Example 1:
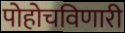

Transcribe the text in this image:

पोहोचविणारी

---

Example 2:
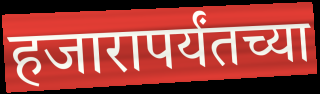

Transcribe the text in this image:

हजारापर्यंतच्या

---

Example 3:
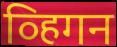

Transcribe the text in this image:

व्हिगन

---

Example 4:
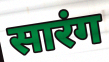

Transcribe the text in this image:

सारंग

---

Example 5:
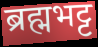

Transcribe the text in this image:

ब्रह्मभट्ट